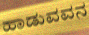
ಹಾಡುವವನ